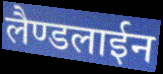
लैण्डलाईन